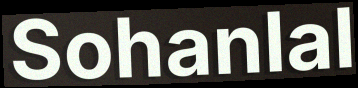
Sohanlal